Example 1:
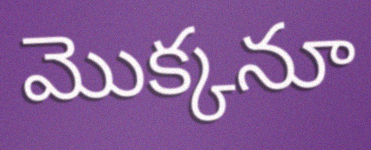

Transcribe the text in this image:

మొక్కనూ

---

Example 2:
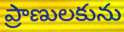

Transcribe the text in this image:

ప్రాణులకును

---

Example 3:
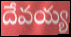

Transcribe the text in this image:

దేవయ్య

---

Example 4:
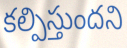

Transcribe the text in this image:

కల్పిస్తుందని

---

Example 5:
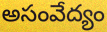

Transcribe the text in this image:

అసంవేద్యం